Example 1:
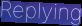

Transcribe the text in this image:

Replying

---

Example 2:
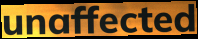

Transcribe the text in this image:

unaffected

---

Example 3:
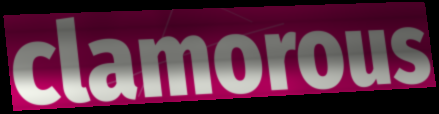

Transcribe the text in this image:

clamorous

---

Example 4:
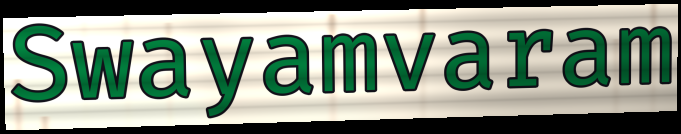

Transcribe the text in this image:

Swayamvaram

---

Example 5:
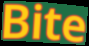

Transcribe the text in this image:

Bite